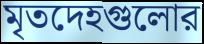
মৃতদেহগুলোর